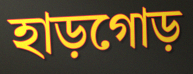
হাড়গোড়